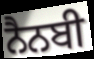
ਨੈਨਬੀ